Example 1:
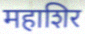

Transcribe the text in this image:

महाशिर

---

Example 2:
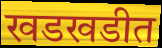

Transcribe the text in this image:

खडखडीत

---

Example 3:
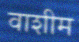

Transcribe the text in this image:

वाशीम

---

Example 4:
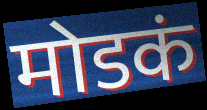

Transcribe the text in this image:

मोडकं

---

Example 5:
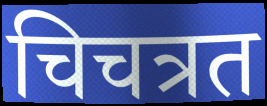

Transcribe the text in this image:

चिचत्रत